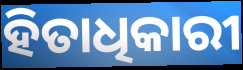
ହିତାଧିକାରୀ